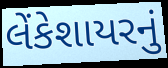
લેંકેશાયરનું